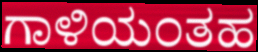
ಗಾಳಿಯಂತಹ